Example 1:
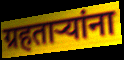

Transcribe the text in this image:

ग्रहताऱ्यांना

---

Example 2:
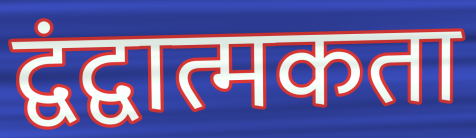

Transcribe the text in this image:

द्वंद्वात्मकता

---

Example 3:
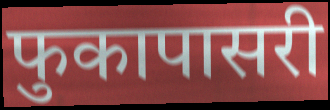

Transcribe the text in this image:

फुकापासरी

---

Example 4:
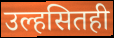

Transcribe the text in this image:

उल्हसितही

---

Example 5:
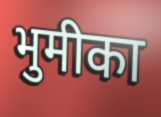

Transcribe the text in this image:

भुमीका